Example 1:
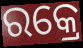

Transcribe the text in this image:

ରକ୍ରେ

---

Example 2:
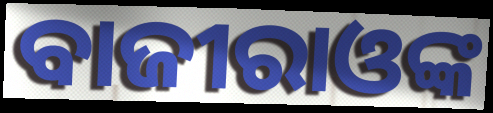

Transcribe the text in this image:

ବାଜୀରାଓଙ୍କ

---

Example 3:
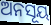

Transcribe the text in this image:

ଅନସୂୟ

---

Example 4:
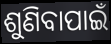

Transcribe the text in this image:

ଶୁଣିବାପାଇଁ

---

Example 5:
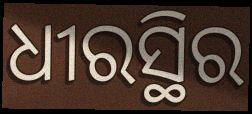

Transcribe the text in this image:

ଧୀରସ୍ଥିର